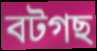
বটগছ